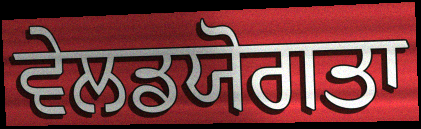
ਵੇਲਡਯੋਗਤਾ